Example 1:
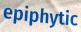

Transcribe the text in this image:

epiphytic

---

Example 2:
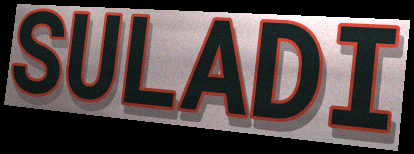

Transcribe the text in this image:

SULADI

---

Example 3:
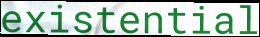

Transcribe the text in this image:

existential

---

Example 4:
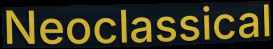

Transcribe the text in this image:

Neoclassical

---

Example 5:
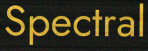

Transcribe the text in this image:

Spectral